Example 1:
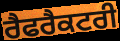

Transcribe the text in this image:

ਰੈਫਰੈਕਟਰੀ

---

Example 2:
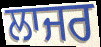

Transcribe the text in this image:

ਲਾਜਰ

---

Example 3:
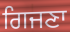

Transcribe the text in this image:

ਗਿਜਣਾ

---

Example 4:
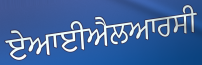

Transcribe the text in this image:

ਏਆਈਐਲਆਰਸੀ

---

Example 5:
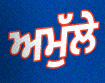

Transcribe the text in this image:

ਅਮੁੱਲੇ